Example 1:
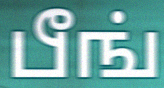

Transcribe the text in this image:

பீங்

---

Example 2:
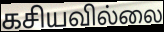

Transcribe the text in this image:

கசியவில்லை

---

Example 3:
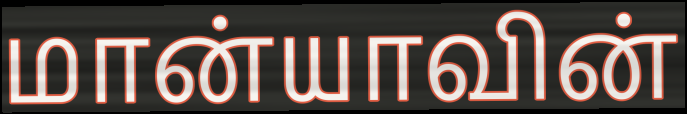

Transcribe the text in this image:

மான்யாவின்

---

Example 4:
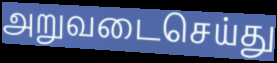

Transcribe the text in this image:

அறுவடைசெய்து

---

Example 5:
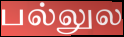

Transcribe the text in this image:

பல்லுல